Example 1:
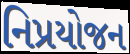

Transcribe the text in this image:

નિપ્રયોજન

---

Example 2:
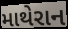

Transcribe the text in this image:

માથેરાન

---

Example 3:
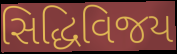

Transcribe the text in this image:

સિદ્ધિવિજય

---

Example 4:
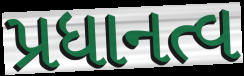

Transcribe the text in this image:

પ્રધાનત્વ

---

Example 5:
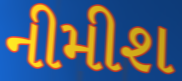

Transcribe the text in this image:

નીમીશ